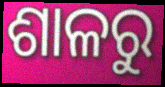
ଶାଳରୁ